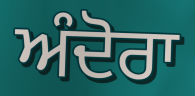
ਅੰਦੋਰਾ